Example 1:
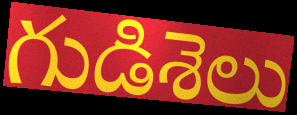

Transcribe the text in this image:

గుడిశెలు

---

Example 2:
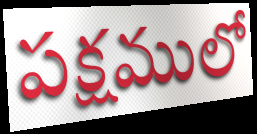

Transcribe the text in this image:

పక్షములో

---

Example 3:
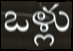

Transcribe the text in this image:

ఒళ్లు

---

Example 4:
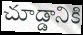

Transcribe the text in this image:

చూడ్డానికి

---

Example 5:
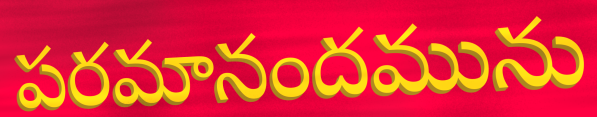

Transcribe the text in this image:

పరమానందమును